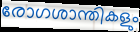
രോഗശാന്തികളും